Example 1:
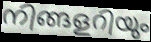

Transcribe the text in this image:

നിങ്ങളറിയും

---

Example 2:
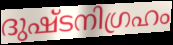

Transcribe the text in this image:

ദുഷ്ടനിഗ്രഹം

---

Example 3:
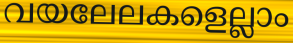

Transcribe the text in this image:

വയലേലകളെല്ലാം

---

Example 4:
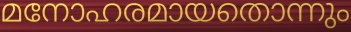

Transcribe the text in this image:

മനോഹരമായതൊന്നും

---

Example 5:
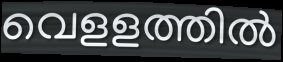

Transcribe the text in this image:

വെളളത്തിൽ